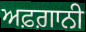
ਅਫ਼ਗ਼ਾਨੀ